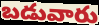
బడువారు